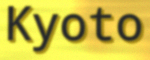
Kyoto